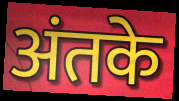
अंतके